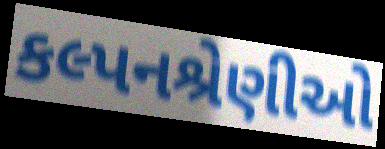
કલ્પનશ્રેણીઓ